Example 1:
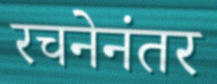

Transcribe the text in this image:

रचनेनंतर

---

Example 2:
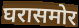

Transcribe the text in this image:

घरासमोर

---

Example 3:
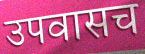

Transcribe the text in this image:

उपवासच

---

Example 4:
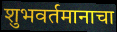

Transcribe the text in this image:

शुभवर्तमानाचा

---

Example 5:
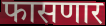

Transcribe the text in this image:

फासणार